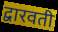
द्वारवती